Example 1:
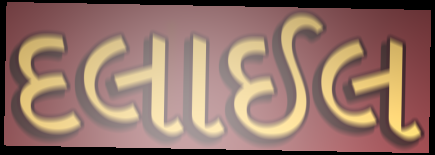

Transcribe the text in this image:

દલાઈલ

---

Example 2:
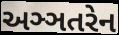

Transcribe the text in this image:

અઞ્ઞતરેન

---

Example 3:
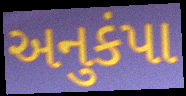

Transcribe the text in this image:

અનુકંપા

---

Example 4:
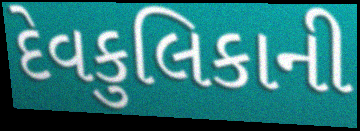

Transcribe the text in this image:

દેવકુલિકાની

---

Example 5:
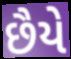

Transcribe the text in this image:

છૈયે